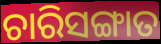
ଚାରିସଙ୍ଗାତ